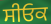
ਸੀਓਕ